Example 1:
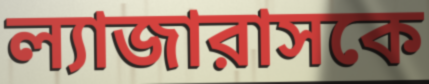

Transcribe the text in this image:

ল্যাজারাসকে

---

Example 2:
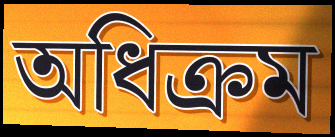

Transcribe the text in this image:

অধিক্রম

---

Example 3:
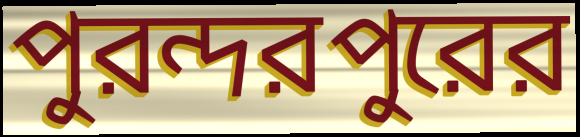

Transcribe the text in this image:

পুরন্দরপুরের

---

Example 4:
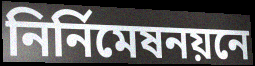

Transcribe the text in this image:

নির্নিমেষনয়নে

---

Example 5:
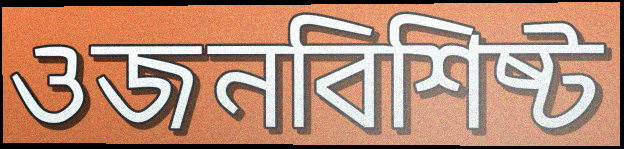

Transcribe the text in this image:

ওজনবিশিষ্ট